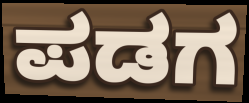
ಪಡಗ